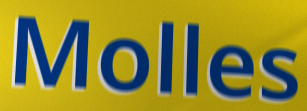
Molles